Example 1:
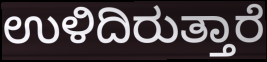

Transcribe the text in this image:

ಉಳಿದಿರುತ್ತಾರೆ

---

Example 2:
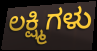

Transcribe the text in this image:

ಲಕ್ಷ್ಮಿಗಳು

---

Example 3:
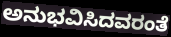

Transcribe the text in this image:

ಅನುಭವಿಸಿದವರಂತೆ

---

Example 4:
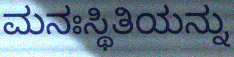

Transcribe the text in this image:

ಮನಃಸ್ಥಿತಿಯನ್ನು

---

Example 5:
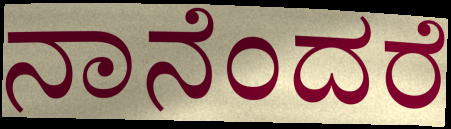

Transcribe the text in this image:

ನಾನೆಂದರೆ